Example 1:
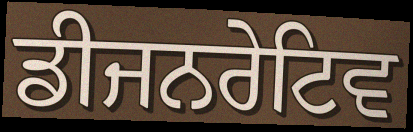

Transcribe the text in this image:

ਡੀਜਨਰੇਟਿਵ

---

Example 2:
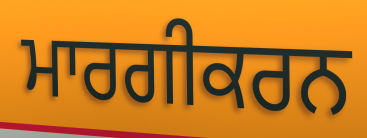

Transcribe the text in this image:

ਮਾਰਗੀਕਰਨ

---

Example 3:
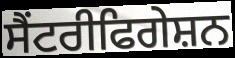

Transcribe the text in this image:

ਸੈਂਟਰੀਫਿਗੇਸ਼ਨ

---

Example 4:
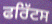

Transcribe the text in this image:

ਫਰਿੱਟਸ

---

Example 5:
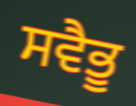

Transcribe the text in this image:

ਸਵੈਭੂ